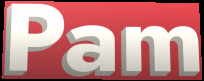
Pam